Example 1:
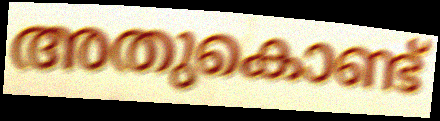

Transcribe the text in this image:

അതുകൊണ്ട്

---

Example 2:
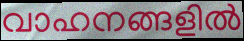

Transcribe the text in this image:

വാഹനങ്ങളിൽ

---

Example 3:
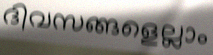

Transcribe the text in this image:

ദിവസങ്ങളെല്ലാം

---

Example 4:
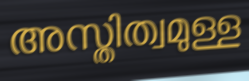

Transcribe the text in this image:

അസ്തിത്വമുള്ള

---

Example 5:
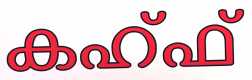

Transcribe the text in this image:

കഹ്ഫ്